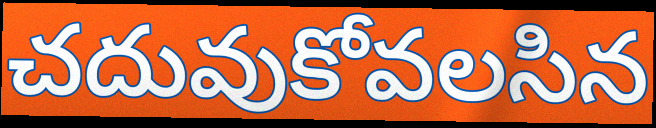
చదువుకోవలసిన